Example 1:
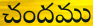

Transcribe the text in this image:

చందము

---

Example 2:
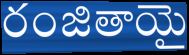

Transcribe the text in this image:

రంజితాయై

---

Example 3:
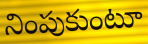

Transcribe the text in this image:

నింపుకుంటూ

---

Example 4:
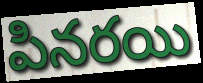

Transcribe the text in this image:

పినరయి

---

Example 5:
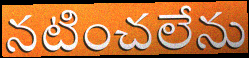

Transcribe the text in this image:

నటించలేను